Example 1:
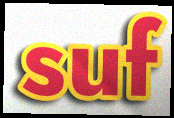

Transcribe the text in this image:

suf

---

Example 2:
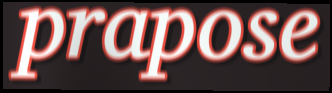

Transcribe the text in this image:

prapose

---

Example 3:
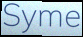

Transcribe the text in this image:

Syme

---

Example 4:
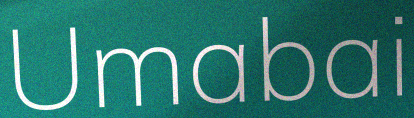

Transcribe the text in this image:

Umabai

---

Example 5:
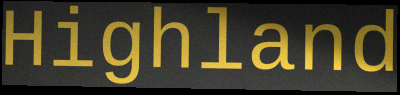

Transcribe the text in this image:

Highland